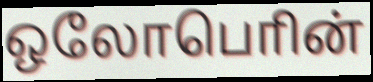
ஒலோபெரின்